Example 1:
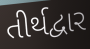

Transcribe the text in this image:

તીર્થદ્વાર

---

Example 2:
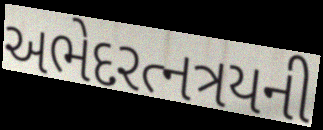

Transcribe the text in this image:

અભેદરત્નત્રયની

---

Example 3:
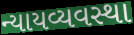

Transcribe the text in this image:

ન્યાયવ્યવસ્થા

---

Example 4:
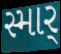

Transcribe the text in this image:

સ્માર્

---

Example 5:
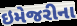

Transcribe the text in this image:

ઇમેજરીના